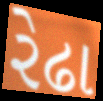
રેઢા